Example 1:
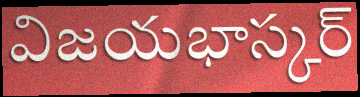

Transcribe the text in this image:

విజయభాస్కర్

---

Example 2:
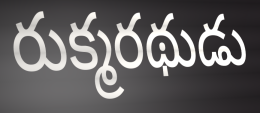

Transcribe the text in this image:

రుక్మరథుడు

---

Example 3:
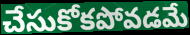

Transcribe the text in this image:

చేసుకోకపోవడమే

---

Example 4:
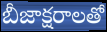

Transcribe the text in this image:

బీజాక్షరాలతో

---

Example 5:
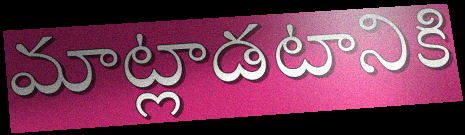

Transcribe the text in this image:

మాట్లాడటానికి